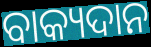
ବାକ୍ୟଦାନ